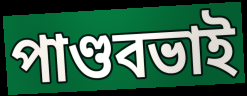
পাণ্ডবভাই